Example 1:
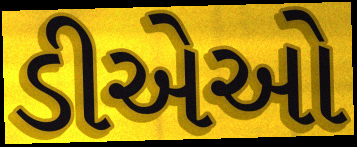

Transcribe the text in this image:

ડીએઓ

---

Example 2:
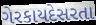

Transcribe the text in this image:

ગેરકાયદેસરતા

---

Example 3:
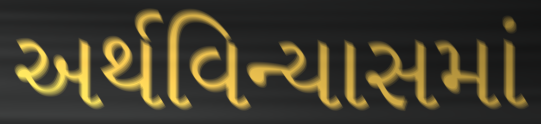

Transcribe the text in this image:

અર્થવિન્યાસમાં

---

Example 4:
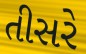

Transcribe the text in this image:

તીસરે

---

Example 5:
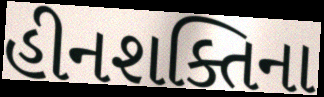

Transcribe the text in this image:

હીનશક્તિના